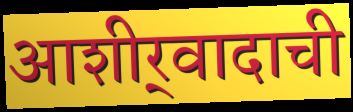
आशीर्वादाची